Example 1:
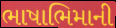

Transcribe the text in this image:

ભાષાભિમાની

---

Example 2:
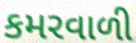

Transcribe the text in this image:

કમરવાળી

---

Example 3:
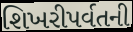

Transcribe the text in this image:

શિખરીપર્વતની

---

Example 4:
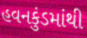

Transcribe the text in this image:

હવનકુંડમાંથી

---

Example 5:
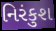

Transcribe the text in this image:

નિરંકુશ